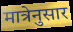
मात्रेनुसार